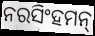
ନରସିଂହମନ୍